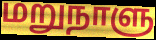
மறுநாளு